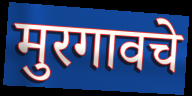
मुरगावचे